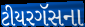
ટીયરગૅસના